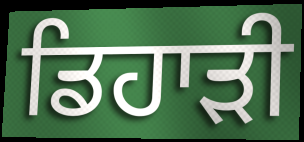
ਡਿਹਾੜੀ